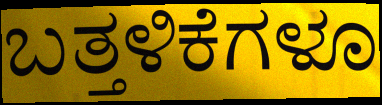
ಬತ್ತಳಿಕೆಗಳೂ